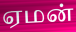
ஏமன்